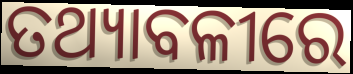
ତଥ୍ୟାବଳୀରେ